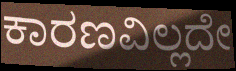
ಕಾರಣವಿಲ್ಲದೇ